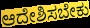
ಆದೇಶಿಸಬೇಕು